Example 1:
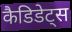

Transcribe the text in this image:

कैडिडेट्स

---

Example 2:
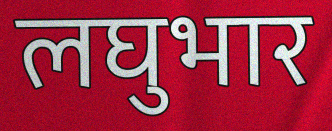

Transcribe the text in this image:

लघुभार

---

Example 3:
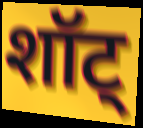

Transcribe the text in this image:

शॉट्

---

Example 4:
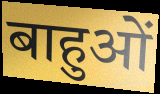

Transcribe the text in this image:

बाहुओं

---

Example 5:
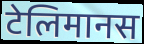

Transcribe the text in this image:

टेलिमानस